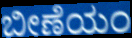
ಬೀಣೆಯಂ